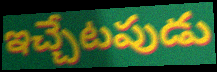
ఇచ్చేటపుడు